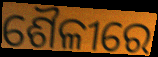
ଶୈଳୀରେ